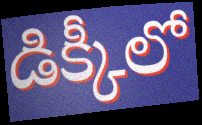
డిక్కీలో